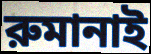
রুমানাই